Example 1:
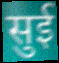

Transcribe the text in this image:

सुई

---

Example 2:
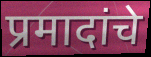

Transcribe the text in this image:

प्रमादांचे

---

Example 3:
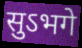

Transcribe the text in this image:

सुऽभगे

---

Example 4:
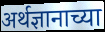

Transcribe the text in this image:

अर्थज्ञानाच्या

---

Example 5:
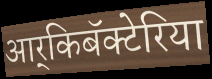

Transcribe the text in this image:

आर्किबॅक्टेरिया